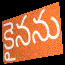
కైనను